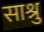
साश्रु